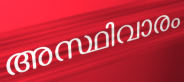
അസ്ഥിവാരം